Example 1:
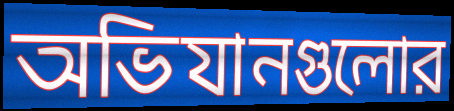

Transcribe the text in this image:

অভিযানগুলোর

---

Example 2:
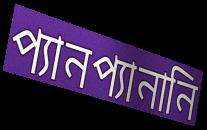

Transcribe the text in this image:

প্যানপ্যানানি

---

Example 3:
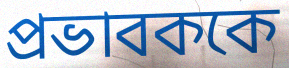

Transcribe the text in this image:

প্রভাবককে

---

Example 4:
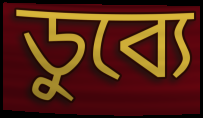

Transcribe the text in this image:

ডুব্যে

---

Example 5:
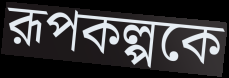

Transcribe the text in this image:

রূপকল্পকে